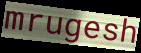
mrugesh